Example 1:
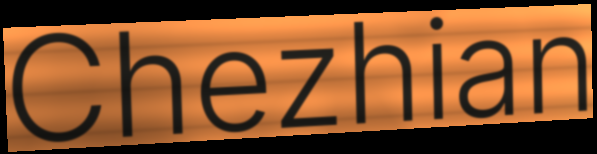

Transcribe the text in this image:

Chezhian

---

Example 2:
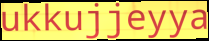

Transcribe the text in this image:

ukkujjeyya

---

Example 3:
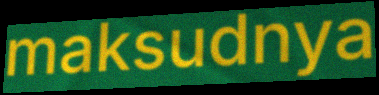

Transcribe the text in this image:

maksudnya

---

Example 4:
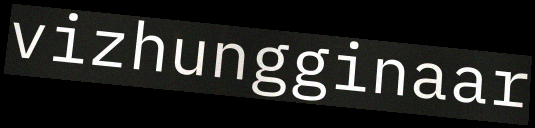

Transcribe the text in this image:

vizhungginaar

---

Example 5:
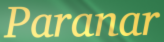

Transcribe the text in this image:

Paranar